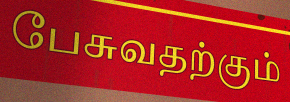
பேசுவதற்கும்